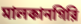
মালকানগিরি